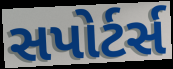
સપોર્ટર્સ